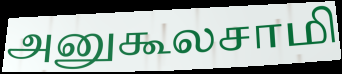
அனுகூலசாமி